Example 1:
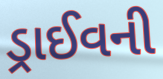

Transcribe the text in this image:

ડ્રાઈવની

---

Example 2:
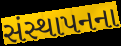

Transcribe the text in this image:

સંસ્થાપનના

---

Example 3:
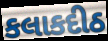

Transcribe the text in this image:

કલાકદીઠ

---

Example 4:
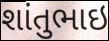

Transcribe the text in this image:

શાંતુભાઇ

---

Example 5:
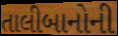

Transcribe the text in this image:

તાલીબાનોની